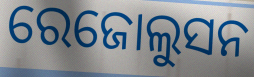
ରେଜୋଲୁସନ